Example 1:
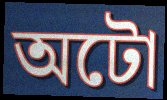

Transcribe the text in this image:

অটো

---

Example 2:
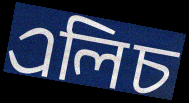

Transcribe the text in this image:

এলিচ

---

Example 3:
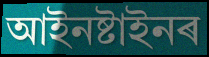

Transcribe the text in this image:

আইনষ্টাইনৰ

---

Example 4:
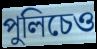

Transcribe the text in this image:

পুলিচেও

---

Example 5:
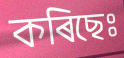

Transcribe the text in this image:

কৰিছেঃ